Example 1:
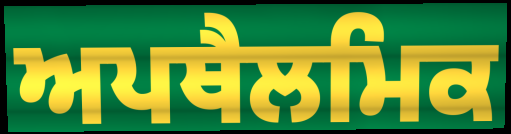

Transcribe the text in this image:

ਅਪਥੈਲਮਿਕ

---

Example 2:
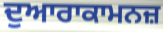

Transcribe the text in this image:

ਦੁਆਰਾਕਾਮਨਜ਼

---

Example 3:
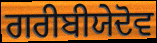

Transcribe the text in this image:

ਗਰੀਬੀਯੇਦੋਵ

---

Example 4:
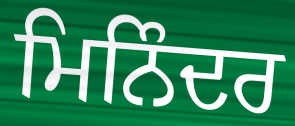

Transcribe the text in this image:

ਮਿਨਿੰਦਰ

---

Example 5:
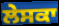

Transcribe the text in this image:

ਲੇਸਕਾ